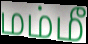
மம்மீ